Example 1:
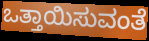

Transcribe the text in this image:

ಒತ್ತಾಯಿಸುವಂತೆ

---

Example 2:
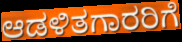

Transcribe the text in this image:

ಆಡಳಿತಗಾರರಿಗೆ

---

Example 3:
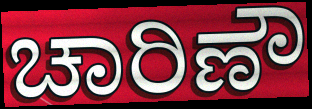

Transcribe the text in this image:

ಚಾರಿಣೌ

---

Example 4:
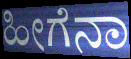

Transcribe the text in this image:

ಹೀಗೆನಾ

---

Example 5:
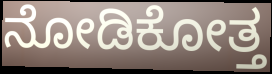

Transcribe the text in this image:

ನೋಡಿಕೋತ್ತ